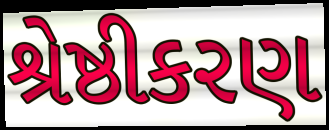
શ્રેષ્ઠીકરણ